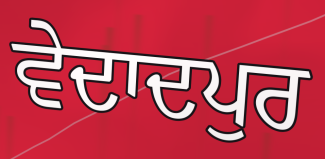
ਵੇਦਾਦਪੁਰ